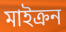
মাইক্রন